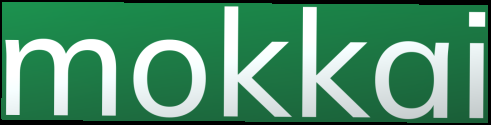
mokkai